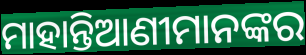
ମାହାନ୍ତିଆଣୀମାନଙ୍କର